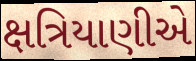
ક્ષત્રિયાણીએ